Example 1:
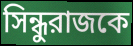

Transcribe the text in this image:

সিন্ধুরাজকে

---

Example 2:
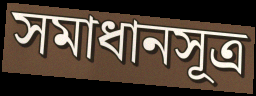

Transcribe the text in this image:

সমাধানসূত্র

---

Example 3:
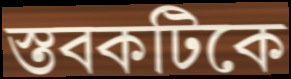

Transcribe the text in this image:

স্তবকটিকে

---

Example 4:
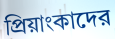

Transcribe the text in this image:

প্রিয়াংকাদের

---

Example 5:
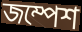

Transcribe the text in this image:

জম্পেশ